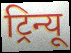
ट्रिन्यू